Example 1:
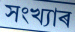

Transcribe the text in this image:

সংখ্যাৰ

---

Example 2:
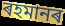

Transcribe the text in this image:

ৰহমানৰ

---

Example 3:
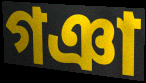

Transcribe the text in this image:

গঞা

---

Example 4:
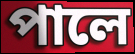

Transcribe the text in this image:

পালে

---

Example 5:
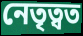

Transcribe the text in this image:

নেতৃত্বত